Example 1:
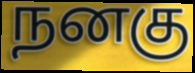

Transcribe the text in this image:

நனகு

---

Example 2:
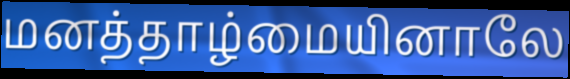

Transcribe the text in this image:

மனத்தாழ்மையினாலே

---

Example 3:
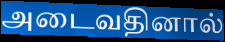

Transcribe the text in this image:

அடைவதினால்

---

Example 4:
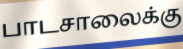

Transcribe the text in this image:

பாடசாலைக்கு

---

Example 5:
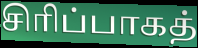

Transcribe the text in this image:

சிரிப்பாகத்